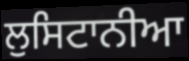
ਲੁਸਿਟਾਨੀਆ